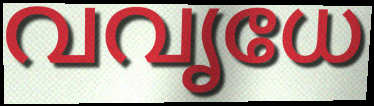
വവൃധേ